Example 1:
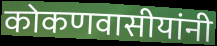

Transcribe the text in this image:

कोकणवासीयांनी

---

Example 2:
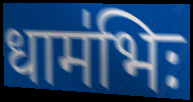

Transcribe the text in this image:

धाम॑भिः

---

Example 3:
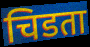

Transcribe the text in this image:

चिडता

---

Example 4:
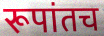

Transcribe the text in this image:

रूपांतच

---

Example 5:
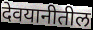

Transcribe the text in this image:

देवयानीतील